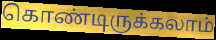
கொண்டிருக்கலாம்